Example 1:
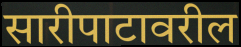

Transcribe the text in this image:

सारीपाटावरील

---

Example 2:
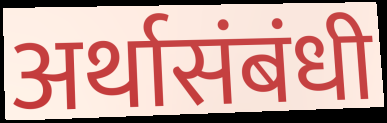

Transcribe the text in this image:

अर्थासंबंधी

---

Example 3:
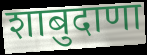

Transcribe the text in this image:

शाबुदाणा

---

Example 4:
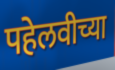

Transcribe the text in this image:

पहेलवीच्या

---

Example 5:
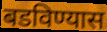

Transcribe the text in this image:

बडविण्यास